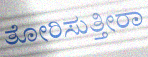
ತೋರಿಸುತ್ತೀರಾ